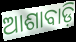
ଆଶାବାଡ଼ି